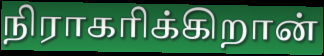
நிராகரிக்கிறான்